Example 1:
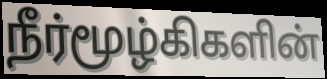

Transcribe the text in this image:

நீர்மூழ்கிகளின்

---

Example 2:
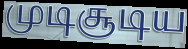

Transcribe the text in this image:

முடிசூடிய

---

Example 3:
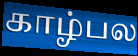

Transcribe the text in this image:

காழ்பல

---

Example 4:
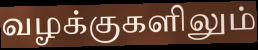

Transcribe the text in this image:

வழக்குகளிலும்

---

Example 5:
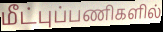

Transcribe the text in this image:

மீட்புப்பணிகளில்